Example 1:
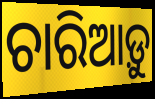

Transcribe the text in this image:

ଚାରିଆଡ଼ୁ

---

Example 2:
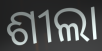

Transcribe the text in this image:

ଶୀଲା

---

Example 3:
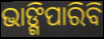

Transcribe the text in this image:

ଭାଙ୍ଗିପାରିବି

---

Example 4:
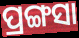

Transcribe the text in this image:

ପ୍ରଙ୍ଗସା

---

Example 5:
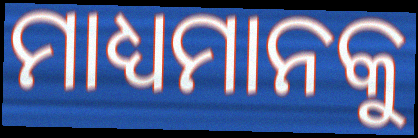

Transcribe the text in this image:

ମାଧ୍ୟମାନକୁ